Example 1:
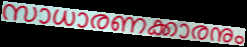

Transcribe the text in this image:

സാധാരണക്കാരനും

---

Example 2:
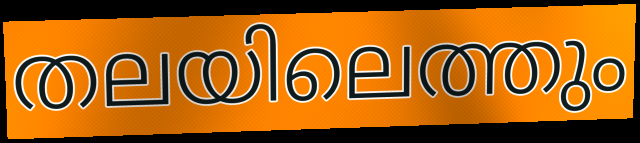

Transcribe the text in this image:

തലയിലെത്തും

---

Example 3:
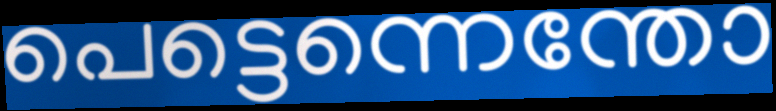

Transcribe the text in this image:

പെട്ടെന്നെന്തോ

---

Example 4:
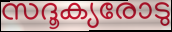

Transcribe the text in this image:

സദൂക്യരോടു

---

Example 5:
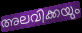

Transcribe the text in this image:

അലവിക്കയും